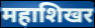
महाशिखर